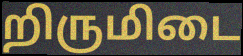
றிருமிடை